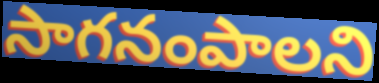
సాగనంపాలని